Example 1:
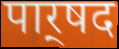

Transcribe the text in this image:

पार्षद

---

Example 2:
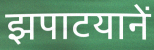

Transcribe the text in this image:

झपाटयानें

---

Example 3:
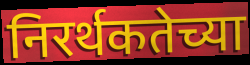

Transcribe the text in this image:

निरर्थकतेच्या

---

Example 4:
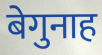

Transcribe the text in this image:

बेगुनाह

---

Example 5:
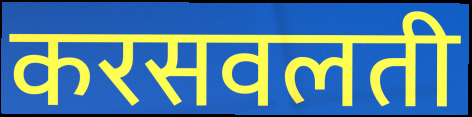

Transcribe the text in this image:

करसवलती